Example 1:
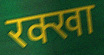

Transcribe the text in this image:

रक्खा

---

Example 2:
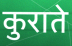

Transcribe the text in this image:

कुराते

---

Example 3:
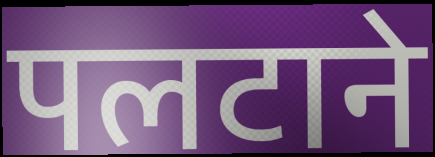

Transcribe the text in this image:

पलटाने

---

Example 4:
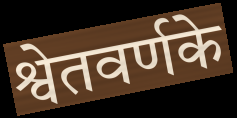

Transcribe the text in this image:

श्वेतवर्णके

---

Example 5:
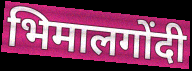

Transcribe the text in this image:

भिमालगोंदी